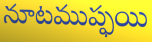
నూటముప్ఫయి